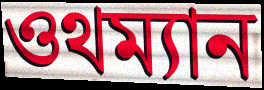
ওথম্যান